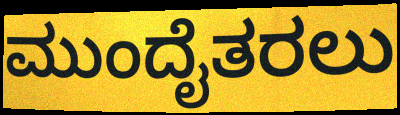
ಮುಂದೈತರಲು